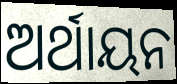
ଅର୍ଥାୟନ